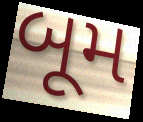
બૂમ